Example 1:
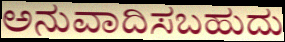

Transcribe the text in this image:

ಅನುವಾದಿಸಬಹುದು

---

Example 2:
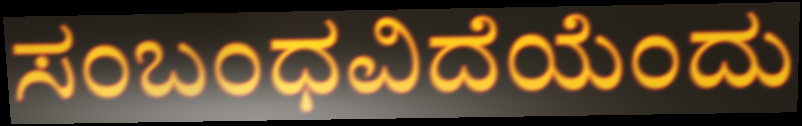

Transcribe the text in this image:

ಸಂಬಂಧವಿದೆಯೆಂದು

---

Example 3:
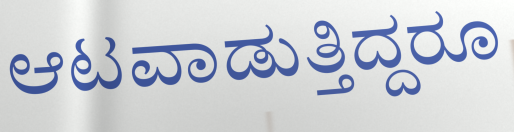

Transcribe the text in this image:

ಆಟವಾಡುತ್ತಿದ್ದರೂ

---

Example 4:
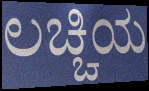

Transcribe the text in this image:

ಲಚ್ಚಿಯ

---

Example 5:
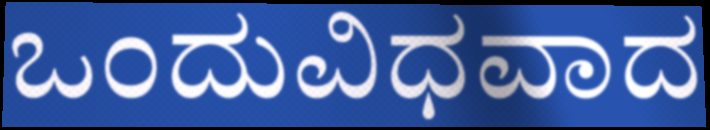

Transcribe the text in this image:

ಒಂದುವಿಧವಾದ